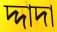
দ্দাদা